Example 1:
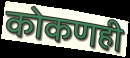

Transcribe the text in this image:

कोकणही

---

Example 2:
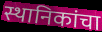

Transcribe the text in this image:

स्थानिकांचा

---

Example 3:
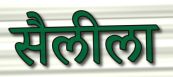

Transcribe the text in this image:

सैलीला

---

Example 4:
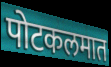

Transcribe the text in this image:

पोटकलमात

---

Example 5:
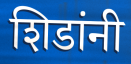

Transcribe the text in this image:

शिडांनी